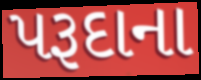
પરૂદાના